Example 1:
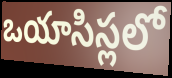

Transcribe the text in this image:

ఒయాసిస్లలో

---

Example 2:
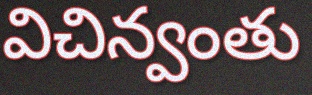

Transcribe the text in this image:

విచిన్వంతు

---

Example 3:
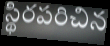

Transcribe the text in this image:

స్థిరపరిచిన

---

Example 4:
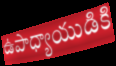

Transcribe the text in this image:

ఉపాధ్యాయుడికి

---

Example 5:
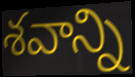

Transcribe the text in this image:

శవాన్ని